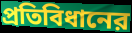
প্রতিবিধানের